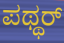
ಪಥ್ಥರ್